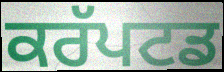
ਕਰੱਪਟਡ